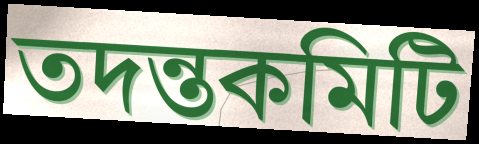
তদন্তকমিটি